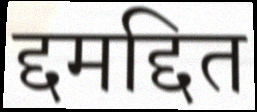
द्दमद्दित